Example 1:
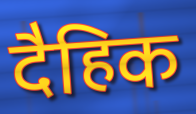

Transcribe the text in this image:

दैहिक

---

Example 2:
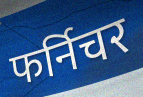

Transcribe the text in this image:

फर्निचर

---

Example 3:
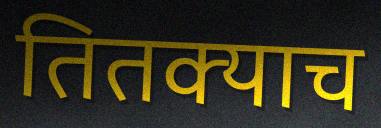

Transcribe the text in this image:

तितक्‍याच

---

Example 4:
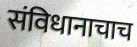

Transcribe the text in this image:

संविधानाचाच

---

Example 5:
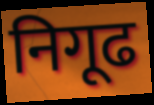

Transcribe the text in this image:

निगूढ